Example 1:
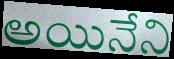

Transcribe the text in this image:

అయినేని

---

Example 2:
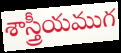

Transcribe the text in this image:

శాస్త్రీయముగ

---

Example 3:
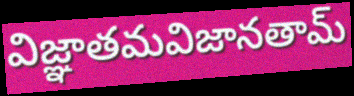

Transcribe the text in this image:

విజ్ఞాతమవిజానతామ్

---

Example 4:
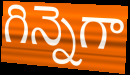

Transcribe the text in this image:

గిన్నెగా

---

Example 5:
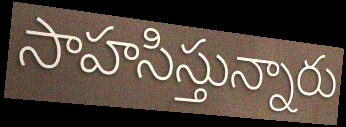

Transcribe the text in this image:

సాహసిస్తున్నారు